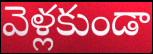
వెళ్లకుండా